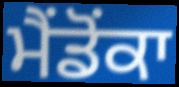
ਮੈਂਡੋਂਕਾ